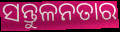
ସନ୍ତୁଳନତାର